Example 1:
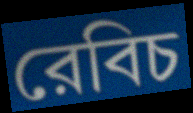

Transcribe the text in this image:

রেবিচ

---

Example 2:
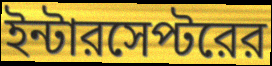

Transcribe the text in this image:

ইন্টারসেপ্টরের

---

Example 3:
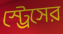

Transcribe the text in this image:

স্ট্রেসের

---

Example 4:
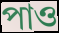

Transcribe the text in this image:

পাও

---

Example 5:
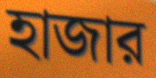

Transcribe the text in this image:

হাজার